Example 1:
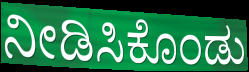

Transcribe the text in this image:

ನೀಡಿಸಿಕೊಂಡು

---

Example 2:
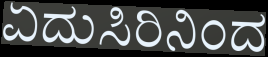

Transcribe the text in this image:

ಏದುಸಿರಿನಿಂದ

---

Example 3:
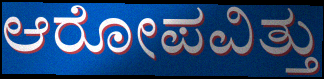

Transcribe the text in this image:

ಆರೋಪವಿತ್ತು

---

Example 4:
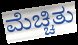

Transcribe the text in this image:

ಮೆಚ್ಚಿತು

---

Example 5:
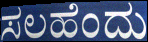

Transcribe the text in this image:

ಸಲಹೆಂದು